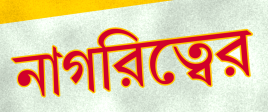
নাগরিত্বের